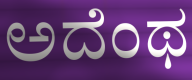
ಅದೆಂಥ